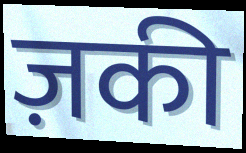
ज़की